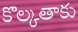
కొల్కతాకు